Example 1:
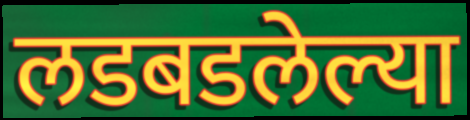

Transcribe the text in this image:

लडबडलेल्या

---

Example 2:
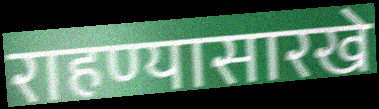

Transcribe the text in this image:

राहण्यासारखे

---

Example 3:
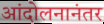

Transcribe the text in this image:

आंदोलनानंतर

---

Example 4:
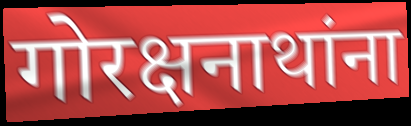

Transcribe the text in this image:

गोरक्षनाथांना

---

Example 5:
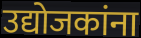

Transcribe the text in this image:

उद्योजकांना